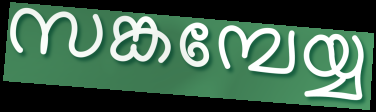
സങ്കമ്പേയ്യ